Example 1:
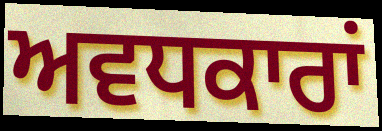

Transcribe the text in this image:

ਅਵਧਕਾਰਾਂ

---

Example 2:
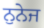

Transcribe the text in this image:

ਨੁਨੇਜ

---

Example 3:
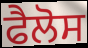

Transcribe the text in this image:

ਫੈਲੋਸ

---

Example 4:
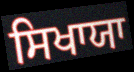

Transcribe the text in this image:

ਸਿਖਾਯਾ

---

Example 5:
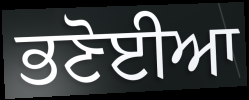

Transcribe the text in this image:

ਭਣੋਈਆ